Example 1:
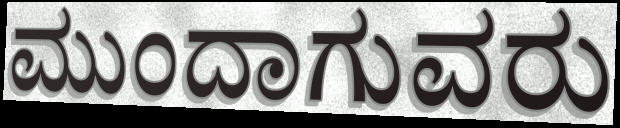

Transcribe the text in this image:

ಮುಂದಾಗುವರು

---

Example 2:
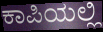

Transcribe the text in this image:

ಕಾಪಿಯಲ್ಲಿ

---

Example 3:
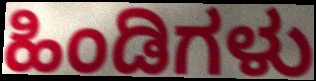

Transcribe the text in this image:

ಹಿಂಡಿಗಳು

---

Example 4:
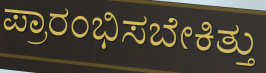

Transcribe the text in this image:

ಪ್ರಾರಂಭಿಸಬೇಕಿತ್ತು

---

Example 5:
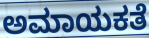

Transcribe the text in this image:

ಅಮಾಯಕತೆ